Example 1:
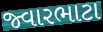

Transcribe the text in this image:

જ્વારભાટા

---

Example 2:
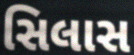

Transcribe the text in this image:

સિલાસ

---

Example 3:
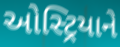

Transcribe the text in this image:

ઓસ્ટ્રિયાને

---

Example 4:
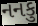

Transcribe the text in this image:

નનકુ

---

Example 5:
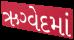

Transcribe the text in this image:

ઋગ્વેદમાં